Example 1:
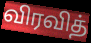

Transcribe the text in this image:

விரவித்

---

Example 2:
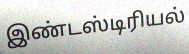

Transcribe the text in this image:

இண்டஸ்டிரியல்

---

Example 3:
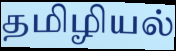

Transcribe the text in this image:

தமிழியல்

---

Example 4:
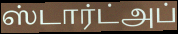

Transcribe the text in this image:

ஸ்டார்ட்அப்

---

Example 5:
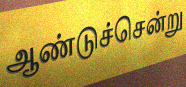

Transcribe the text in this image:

ஆண்டுச்சென்று